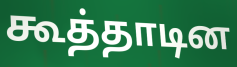
கூத்தாடின